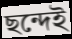
ছন্দেই